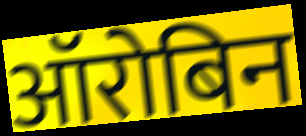
ऑरोबिन